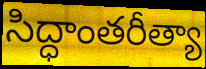
సిద్ధాంతరీత్యా